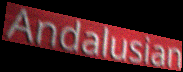
Andalusian